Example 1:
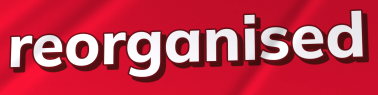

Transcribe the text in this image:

reorganised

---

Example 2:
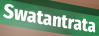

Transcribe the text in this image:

Swatantrata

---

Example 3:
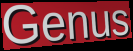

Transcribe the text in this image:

Genus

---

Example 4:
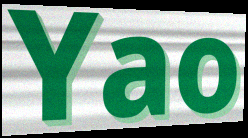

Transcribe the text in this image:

Yao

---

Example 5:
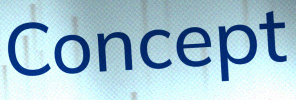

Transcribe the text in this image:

Concept